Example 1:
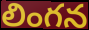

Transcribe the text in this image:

లింగన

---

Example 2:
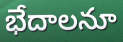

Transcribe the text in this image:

భేదాలనూ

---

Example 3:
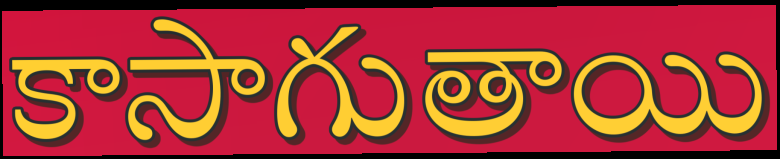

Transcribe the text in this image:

కాసాగుతాయి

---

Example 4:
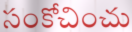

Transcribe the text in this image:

సంకోచించు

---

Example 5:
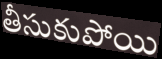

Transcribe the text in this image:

తీసుకుపోయి